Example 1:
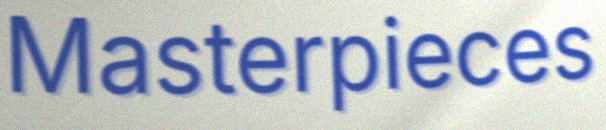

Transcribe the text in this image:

Masterpieces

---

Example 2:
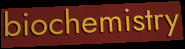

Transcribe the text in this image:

biochemistry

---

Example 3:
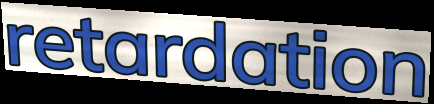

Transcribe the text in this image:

retardation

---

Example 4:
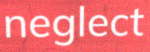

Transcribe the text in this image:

neglect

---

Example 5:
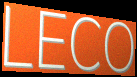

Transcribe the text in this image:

LECO